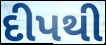
દીપથી